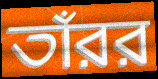
তাঁরর